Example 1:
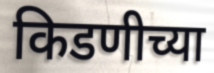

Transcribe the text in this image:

किडणीच्या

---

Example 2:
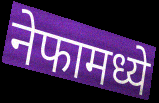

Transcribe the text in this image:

नेफामध्ये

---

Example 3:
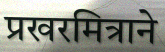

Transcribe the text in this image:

प्रखरमित्राने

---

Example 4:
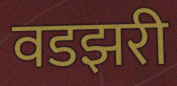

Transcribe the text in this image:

वडझरी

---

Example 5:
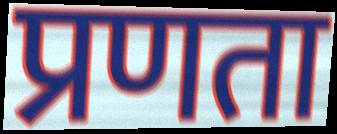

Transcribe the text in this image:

प्रणता